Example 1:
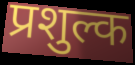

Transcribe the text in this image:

प्रशुल्क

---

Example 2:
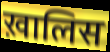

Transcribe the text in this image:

ख़ालिस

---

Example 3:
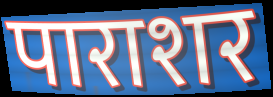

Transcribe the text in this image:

पाराशर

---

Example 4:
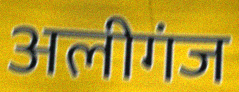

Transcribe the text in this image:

अलीगंज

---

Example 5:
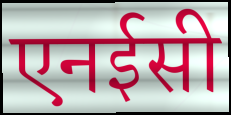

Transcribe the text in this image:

एनईसी